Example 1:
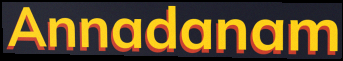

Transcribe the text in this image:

Annadanam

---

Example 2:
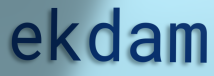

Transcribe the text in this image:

ekdam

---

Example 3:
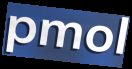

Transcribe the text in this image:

pmol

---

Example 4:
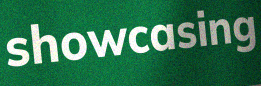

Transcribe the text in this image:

showcasing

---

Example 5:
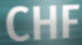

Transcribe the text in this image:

CHF